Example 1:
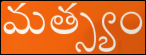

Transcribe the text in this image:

మత్స్యం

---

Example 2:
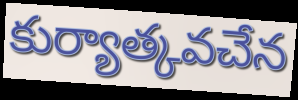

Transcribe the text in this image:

కుర్యాత్కవచేన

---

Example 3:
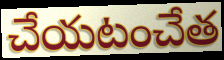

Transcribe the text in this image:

చేయటంచేత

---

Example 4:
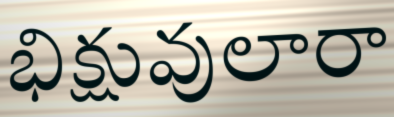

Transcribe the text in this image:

భిక్షువులారా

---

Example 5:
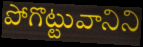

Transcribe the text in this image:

పోగొట్టువానిని